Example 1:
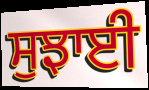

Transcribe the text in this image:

ਸੁਝਾਈ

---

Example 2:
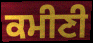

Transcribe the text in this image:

ਕਮੀਣੀ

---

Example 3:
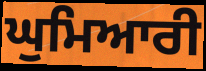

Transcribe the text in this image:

ਘੁਮਿਆਰੀ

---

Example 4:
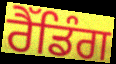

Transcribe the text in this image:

ਰੈੱਡਿੰਗ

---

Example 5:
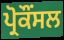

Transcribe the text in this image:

ਪ੍ਰੋਕੌਂਸਲ